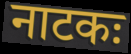
नाटकः